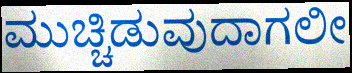
ಮುಚ್ಚಿಡುವುದಾಗಲೀ